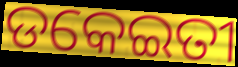
ଡକେଇତୀ